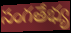
సంగతేభ్య